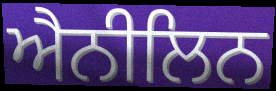
ਐਨੀਲਿਨ